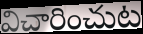
విచారించుట